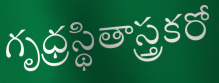
గృధ్రస్థితాస్త్రకరో